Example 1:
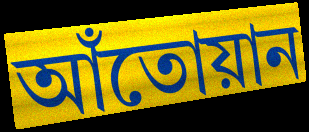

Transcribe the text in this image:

আঁতোয়ান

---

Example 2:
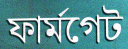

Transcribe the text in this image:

ফার্মগেট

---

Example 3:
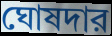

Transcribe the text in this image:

ঘোষদার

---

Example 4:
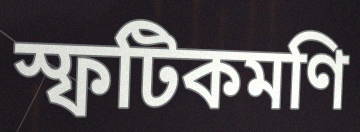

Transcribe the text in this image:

স্ফটিকমণি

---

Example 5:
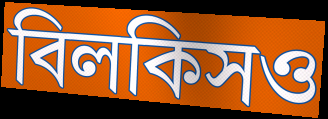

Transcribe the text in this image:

বিলকিসও